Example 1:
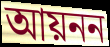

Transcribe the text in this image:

আয়নন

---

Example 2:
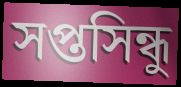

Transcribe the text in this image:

সপ্তসিন্ধু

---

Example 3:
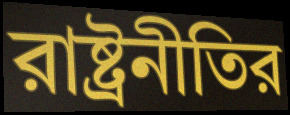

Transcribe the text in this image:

রাষ্ট্রনীতির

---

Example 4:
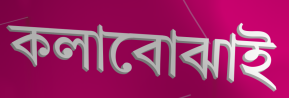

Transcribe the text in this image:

কলাবোঝাই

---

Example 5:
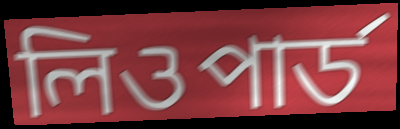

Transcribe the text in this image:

লিওপার্ড